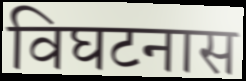
विघटनास